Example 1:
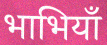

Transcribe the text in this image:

भाभियाँ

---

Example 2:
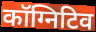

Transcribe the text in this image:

कॉग्निटिव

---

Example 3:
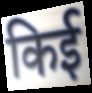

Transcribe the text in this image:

किई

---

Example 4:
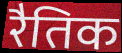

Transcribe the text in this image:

रैतिक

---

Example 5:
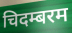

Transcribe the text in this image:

चिदम्बरम